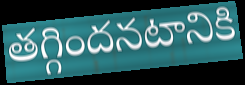
తగ్గిందనటానికి